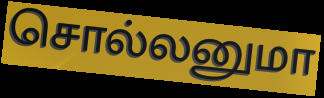
சொல்லனுமா